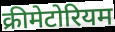
क्रीमेटोरियम